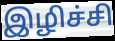
இழிச்சி